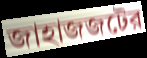
জাহাজজটের